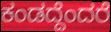
ಕಂಡದ್ದೆಂದರೆ